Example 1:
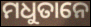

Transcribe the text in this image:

ମଧୁତାନେ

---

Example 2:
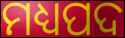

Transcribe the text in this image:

ମଧ୍ୟପଦ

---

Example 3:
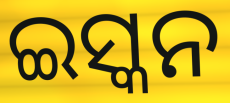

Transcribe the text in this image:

ଇସ୍କନ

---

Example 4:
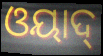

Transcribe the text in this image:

ଓୟାଦ୍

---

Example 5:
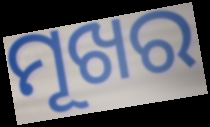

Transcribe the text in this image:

ମୂଖର